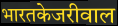
भारतकेजरीवाल